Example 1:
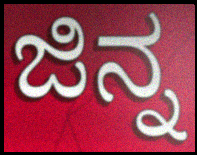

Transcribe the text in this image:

ಜಿನ್ನ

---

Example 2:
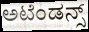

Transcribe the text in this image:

ಅಟೆಂಡನ್ಸ್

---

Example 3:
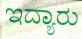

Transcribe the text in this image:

ಇದ್ಯಾರು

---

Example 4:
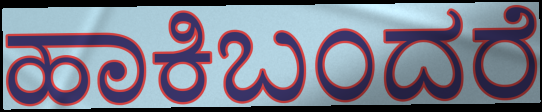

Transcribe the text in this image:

ಹಾಕಿಬಂದರೆ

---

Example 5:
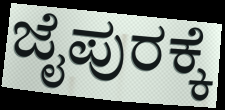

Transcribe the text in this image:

ಜೈಪುರಕ್ಕೆ